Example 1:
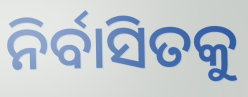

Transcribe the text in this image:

ନିର୍ବାସିତକୁ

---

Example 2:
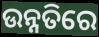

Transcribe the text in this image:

ଉନ୍ନତିରେ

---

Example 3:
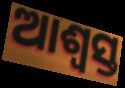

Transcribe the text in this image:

ଆଶ୍ୱସ୍ତ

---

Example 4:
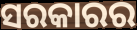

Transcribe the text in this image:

ସରକାରର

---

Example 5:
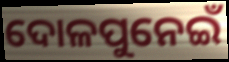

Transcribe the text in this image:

ଦୋଳପୁନେଇଁ